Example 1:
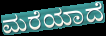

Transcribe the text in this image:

ಮರೆಯಾದೆ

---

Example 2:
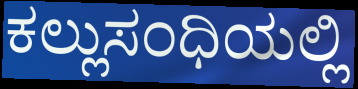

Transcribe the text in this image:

ಕಲ್ಲುಸಂಧಿಯಲ್ಲಿ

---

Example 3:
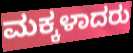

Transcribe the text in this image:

ಮಕ್ಕಳಾದರು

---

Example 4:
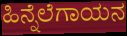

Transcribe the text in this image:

ಹಿನ್ನೆಲೆಗಾಯನ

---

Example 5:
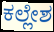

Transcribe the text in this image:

ಕಲ್ಲೇಶ